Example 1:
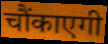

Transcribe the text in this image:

चौंकाएगी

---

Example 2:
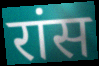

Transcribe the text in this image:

रांस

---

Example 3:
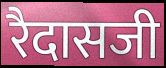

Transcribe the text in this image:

रैदासजी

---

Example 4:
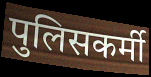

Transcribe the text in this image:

पुलिसकर्मी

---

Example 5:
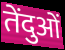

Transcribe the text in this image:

तेंदुओं